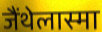
जैंथेलास्मा